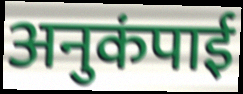
अनुकंपाई